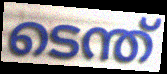
ടെന്ത്